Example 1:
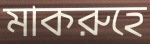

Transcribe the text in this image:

মাকরুহে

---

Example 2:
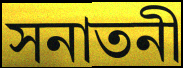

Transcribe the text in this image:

সনাতনী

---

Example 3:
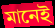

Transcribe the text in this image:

মানেই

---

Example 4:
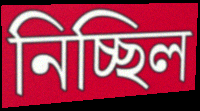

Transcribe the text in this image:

নিচ্ছিল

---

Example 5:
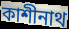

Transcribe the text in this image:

কাশীনাথ